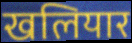
खलियार